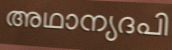
അഥാന്യദപി